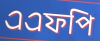
এএফপি